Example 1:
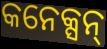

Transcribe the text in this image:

କନେକ୍ସନ୍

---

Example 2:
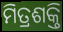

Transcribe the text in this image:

ମିତ୍ରଶକ୍ତି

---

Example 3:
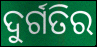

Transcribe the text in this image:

ଦୁର୍ଗତିର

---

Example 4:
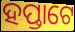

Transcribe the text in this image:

ହପ୍ତାଟେ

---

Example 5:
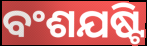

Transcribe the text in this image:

ବଂଶଯଷ୍ଟି